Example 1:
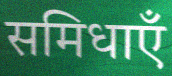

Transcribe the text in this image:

समिधाएँ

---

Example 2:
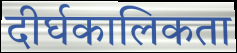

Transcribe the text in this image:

दीर्घकालिकता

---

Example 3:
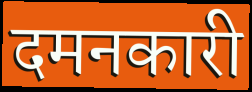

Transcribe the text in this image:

दमनकारी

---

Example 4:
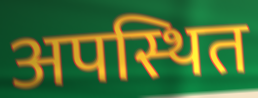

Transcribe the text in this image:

अपस्थित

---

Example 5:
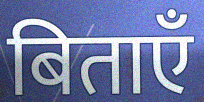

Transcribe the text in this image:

बिताएँ